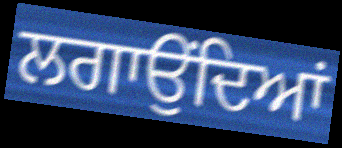
ਲਗਾਉੰਦਿਆਂ